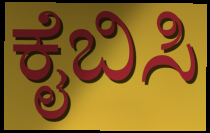
ಕೈಬಿಸಿ